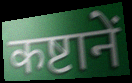
कष्टानें